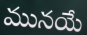
మునయే